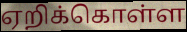
ஏறிக்கொள்ள